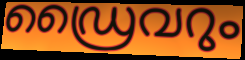
ഡ്രൈവറും